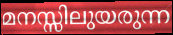
മനസ്സിലുയരുന്ന